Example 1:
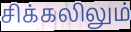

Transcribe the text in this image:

சிக்கலிலும்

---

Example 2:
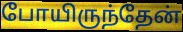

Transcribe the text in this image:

போயிருந்தேன்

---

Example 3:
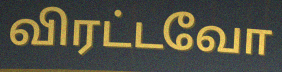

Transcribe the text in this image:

விரட்டவோ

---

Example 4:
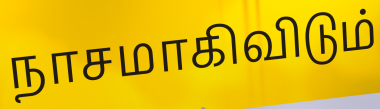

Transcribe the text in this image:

நாசமாகிவிடும்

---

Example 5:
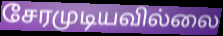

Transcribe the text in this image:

சேரமுடியவில்லை